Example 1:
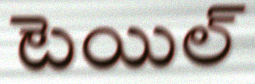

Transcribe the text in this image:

టెయిల్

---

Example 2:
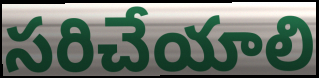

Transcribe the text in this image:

సరిచేయాలి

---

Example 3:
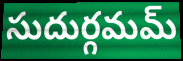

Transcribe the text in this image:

సుదుర్గమమ్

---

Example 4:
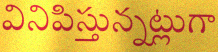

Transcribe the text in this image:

వినిపిస్తున్నట్లుగా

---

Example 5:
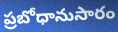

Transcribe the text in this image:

ప్రబోధానుసారం